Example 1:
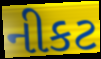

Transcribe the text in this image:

નીકટ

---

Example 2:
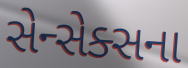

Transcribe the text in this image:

સેન્સેક્સના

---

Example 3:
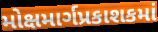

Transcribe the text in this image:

મોક્ષમાર્ગપ્રકાશકમાં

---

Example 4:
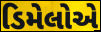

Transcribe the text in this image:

ડિમેલોએ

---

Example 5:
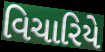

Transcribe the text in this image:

વિચારિયે